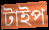
টাইপ